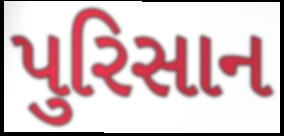
પુરિસાન